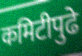
कमिटीपुढे